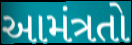
આમંત્રતો